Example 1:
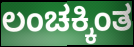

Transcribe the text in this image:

ಲಂಚಕ್ಕಿಂತ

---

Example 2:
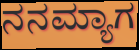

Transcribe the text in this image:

ನನಮ್ಯಾಗ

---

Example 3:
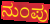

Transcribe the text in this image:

ನುಂಪು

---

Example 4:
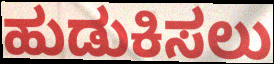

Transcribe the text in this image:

ಹುಡುಕಿಸಲು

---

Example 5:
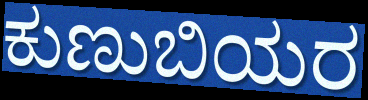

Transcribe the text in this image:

ಕುಣುಬಿಯರ